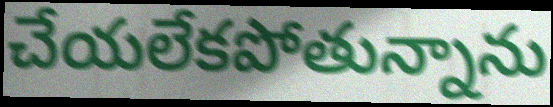
చేయలేకపోతున్నాను